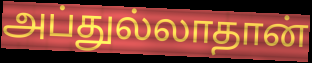
அப்துல்லாதான்